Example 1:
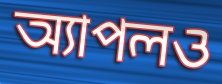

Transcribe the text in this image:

অ্যাপলও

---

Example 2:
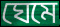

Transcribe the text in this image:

ঘেমে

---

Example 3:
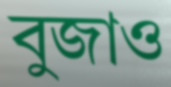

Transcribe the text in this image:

বুজাও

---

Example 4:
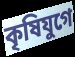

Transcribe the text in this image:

কৃষিযুগে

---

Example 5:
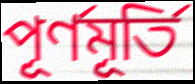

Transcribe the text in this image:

পূর্ণমূর্তি